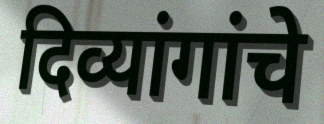
दिव्यांगांचे